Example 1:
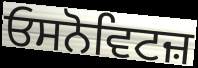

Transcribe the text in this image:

ਓਸਨੋਵਿਟਜ਼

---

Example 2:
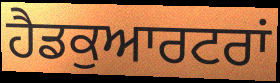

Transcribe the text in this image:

ਹੈਡਕੁਆਰਟਰਾਂ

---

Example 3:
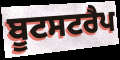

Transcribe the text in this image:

ਬੂਟਸਟਰੈਪ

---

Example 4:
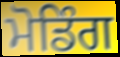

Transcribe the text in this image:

ਮੋਡਿੰਗ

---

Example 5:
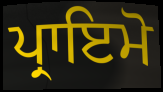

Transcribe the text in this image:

ਪ੍ਰਾਇਮੋ